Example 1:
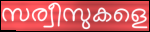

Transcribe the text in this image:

സര്വീസുകളെ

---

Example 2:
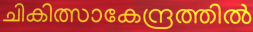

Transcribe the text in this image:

ചികിത്സാകേന്ദ്രത്തിൽ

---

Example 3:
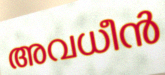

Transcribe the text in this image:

അവധീൻ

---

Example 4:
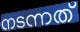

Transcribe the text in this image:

നടന്നത്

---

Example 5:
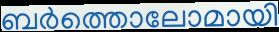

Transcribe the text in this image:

ബർത്തൊലോമായി